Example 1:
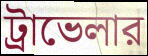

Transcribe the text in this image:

ট্রাভেলার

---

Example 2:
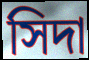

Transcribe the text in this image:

সিদা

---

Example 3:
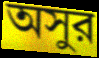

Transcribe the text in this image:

অসুর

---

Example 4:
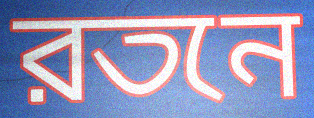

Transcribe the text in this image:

রতনে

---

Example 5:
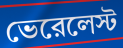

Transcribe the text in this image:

ভেরেলেস্ট